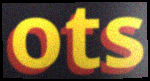
ots